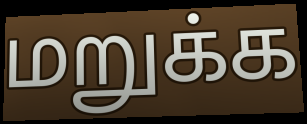
மறுக்க